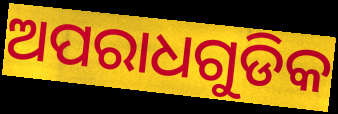
ଅପରାଧଗୁଡିକ